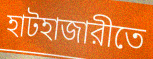
হাটহাজারীতে